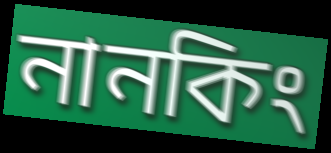
নানকিং